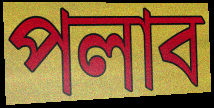
পলাব